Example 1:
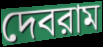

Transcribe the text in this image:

দেবরাম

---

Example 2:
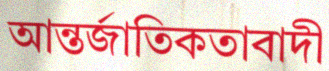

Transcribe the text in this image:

আন্তর্জাতিকতাবাদী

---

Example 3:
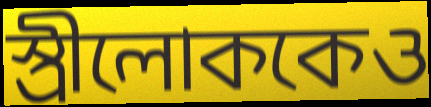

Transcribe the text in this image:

স্ত্রীলোককেও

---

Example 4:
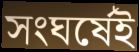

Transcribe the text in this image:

সংঘর্ষেই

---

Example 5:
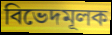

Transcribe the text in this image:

বিভেদমূলক